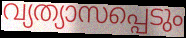
വ്യത്യാസപ്പെടും